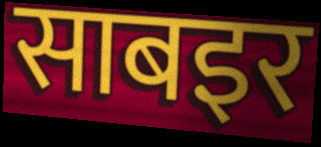
साबइर